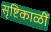
सृष्टिकाळीं